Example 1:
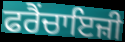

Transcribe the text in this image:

ਫਰੈਂਚਾਇਜ਼ੀ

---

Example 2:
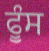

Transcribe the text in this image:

ਫੂੰਸ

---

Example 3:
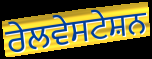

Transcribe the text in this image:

ਰੇਲਵੇਸਟੇਸ਼ਨ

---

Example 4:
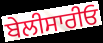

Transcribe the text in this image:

ਬੇਲੀਸਾਰੀਓ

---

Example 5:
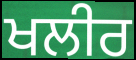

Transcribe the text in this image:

ਖਲੀਰ